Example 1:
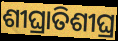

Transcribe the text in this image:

ଶୀଘ୍ରାତିଶୀଘ୍ର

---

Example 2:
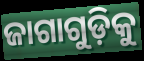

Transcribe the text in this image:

ଜାଗାଗୁଡ଼ିକୁ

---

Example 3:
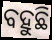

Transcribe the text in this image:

ବହୁଛି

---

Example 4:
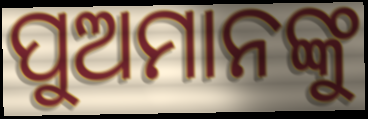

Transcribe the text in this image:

ପୁଅମାନଙ୍କୁ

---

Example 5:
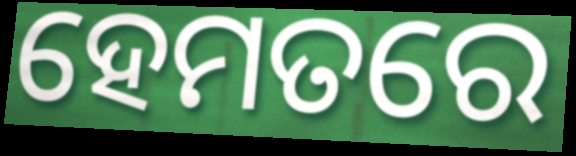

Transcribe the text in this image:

ହେମତରେ